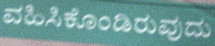
ವಹಿಸಿಕೊಂಡಿರುವುದು